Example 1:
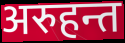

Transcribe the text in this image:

अरुहन्त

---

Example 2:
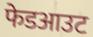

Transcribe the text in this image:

फेडआउट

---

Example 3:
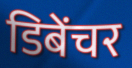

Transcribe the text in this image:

डिबेंचर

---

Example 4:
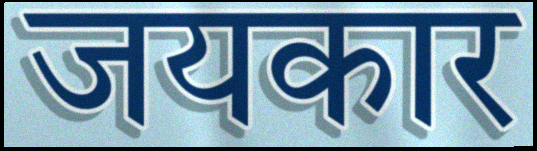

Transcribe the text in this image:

जयकार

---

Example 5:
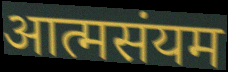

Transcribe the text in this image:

आत्मसंयम